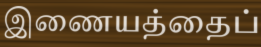
இணையத்தைப்